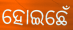
ହୋଇଛେଁ